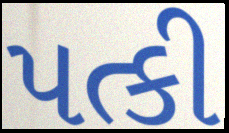
પત્કી